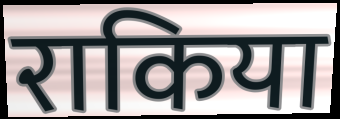
राकिया